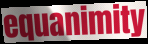
equanimity